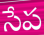
సేప